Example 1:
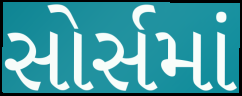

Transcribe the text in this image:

સોર્સમાં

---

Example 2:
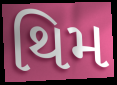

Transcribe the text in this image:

થિમ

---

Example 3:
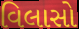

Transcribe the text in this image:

વિલાસો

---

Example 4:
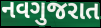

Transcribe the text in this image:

નવગુજરાત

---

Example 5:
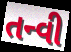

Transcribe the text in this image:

તન્વી